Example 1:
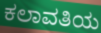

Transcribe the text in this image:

ಕಲಾವತಿಯ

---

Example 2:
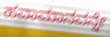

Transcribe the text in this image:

ಹವಾಮಾನವನ್ನೇ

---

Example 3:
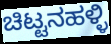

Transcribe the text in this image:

ಚಿಟ್ಟನಹಳ್ಳಿ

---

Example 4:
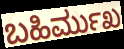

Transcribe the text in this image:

ಬಹಿರ್ಮುಖ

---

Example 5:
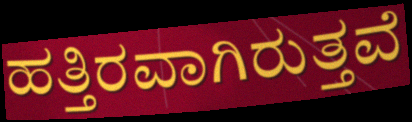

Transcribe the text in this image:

ಹತ್ತಿರವಾಗಿರುತ್ತವೆ